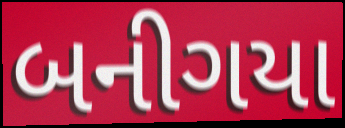
બનીગયા